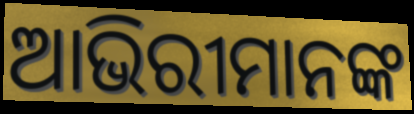
ଆଭିରୀମାନଙ୍କ